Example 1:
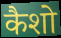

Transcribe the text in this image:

कैशो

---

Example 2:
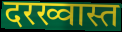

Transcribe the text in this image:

दरख्वास्त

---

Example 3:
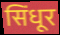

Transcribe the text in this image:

सिंधूर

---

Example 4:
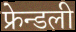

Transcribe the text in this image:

फ्रेन्डली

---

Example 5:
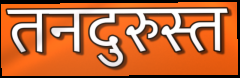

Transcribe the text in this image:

तनदुरुस्त